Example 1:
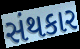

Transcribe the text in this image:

સંથકાર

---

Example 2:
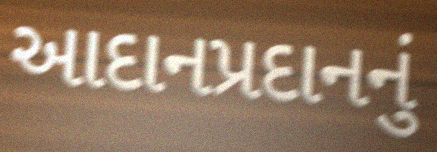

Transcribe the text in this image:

આદાનપ્રદાનનું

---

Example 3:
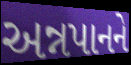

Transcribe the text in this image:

અન્નપાનને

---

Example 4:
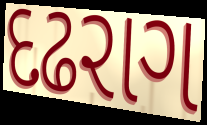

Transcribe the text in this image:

દઢરાગ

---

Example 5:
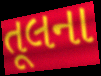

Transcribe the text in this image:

તૂલના